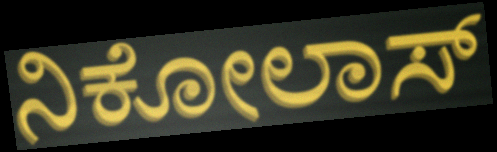
ನಿಕೋಲಾಸ್